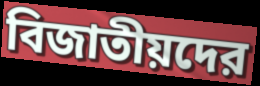
বিজাতীয়দের